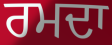
ਰਮਦਾ